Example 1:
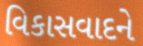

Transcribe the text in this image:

વિકાસવાદને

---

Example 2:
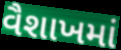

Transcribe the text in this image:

વૈશાખમાં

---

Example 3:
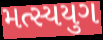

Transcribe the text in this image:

મત્સ્યયુગ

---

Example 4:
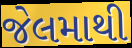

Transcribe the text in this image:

જેલમાથી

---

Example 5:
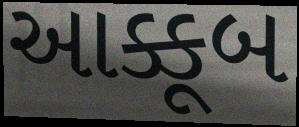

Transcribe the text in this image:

આક્કૂબ